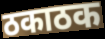
ठकाठक